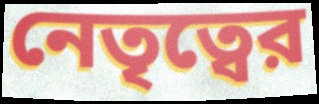
নেতৃত্বের